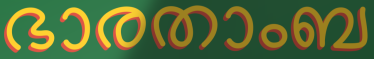
ഭാരതാംബ